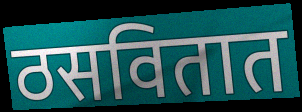
ठसवितात